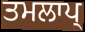
ਤਮਲਾਪ੍